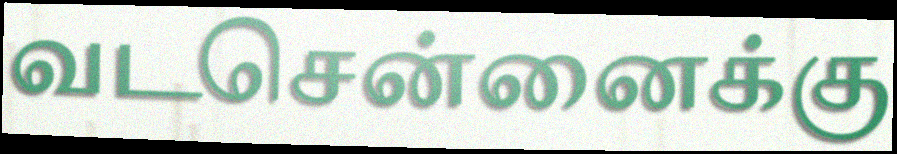
வடசென்னைக்கு